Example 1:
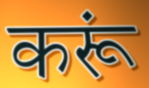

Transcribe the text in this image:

करूं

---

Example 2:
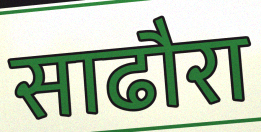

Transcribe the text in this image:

साढौरा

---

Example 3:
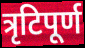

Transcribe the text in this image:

त्रृटिपूर्ण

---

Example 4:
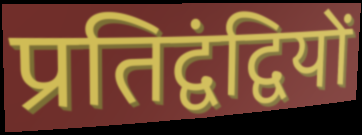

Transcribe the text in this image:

प्रतिद्वंद्वियों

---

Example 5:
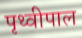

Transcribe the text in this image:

पृथ्वीपाल